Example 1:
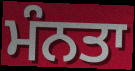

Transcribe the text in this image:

ਮੰਨਤਾ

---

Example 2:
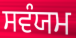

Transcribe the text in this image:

ਸਵੰਯਮ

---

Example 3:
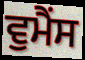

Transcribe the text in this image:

ਵੁਮੈਂਸ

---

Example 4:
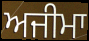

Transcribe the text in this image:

ਅਜੀਮਾ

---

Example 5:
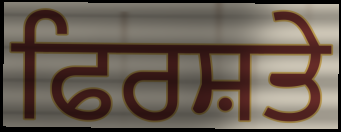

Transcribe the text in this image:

ਫਿਰਸ਼ਤੇ